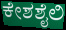
ಕೇಶಶೈಲಿ